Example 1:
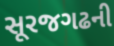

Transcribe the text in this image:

સૂરજગઢની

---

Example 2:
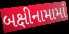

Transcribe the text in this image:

બક્ષીનામામાં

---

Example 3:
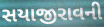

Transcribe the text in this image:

સયાજીરાવની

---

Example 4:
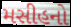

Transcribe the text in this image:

મસીહનો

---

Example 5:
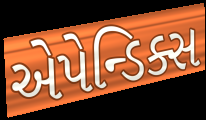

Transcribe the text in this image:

એપેન્ડિક્સ